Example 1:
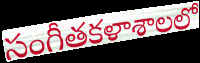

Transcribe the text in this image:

సంగీతకళాశాలలో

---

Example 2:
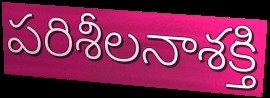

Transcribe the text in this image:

పరిశీలనాశక్తి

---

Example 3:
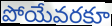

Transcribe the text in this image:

పోయేవరకూ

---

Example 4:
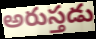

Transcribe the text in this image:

అరుస్తడు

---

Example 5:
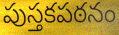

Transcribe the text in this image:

పుస్తకపఠనం